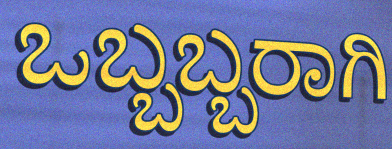
ಒಬ್ಬಬ್ಬರಾಗಿ